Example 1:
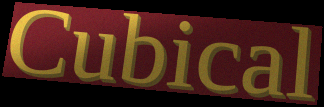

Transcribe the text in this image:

Cubical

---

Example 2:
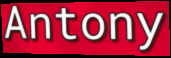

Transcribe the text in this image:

Antony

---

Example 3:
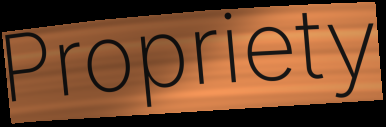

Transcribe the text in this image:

Propriety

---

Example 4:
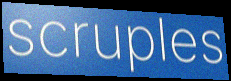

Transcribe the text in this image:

scruples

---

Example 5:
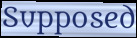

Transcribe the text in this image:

Supposed